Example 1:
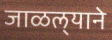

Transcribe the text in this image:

जाळल्याने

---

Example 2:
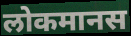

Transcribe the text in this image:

लोकमानस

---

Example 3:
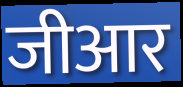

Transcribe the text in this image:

जीआर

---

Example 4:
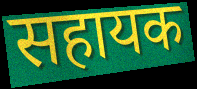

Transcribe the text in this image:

सहायक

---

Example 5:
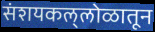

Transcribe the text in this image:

संशयकल्लोळातून